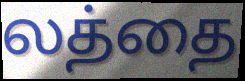
லத்தை